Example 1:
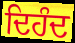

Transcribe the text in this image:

ਦਿਹੰਦ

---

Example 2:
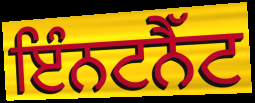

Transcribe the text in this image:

ਇੰਨਟਨੈੱਟ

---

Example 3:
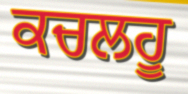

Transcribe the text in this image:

ਕਚਲਹੂ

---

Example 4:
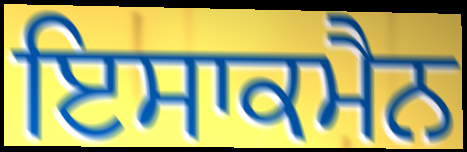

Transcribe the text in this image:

ਇਸਾਕਮੈਨ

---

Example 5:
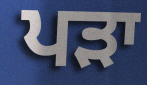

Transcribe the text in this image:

ਪੜਾ